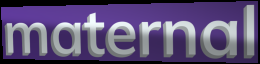
maternal